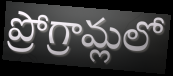
ప్రోగ్రామ్లలో